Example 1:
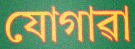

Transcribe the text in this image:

যোগাৱা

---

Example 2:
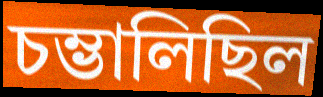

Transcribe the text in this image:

চম্ভালিছিল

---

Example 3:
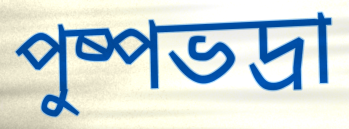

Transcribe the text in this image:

পুষ্পভদ্ৰা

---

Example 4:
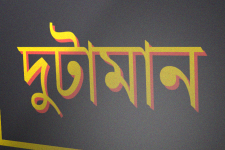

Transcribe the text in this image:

দুটামান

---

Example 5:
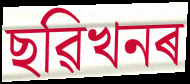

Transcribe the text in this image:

ছৱিখনৰ